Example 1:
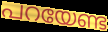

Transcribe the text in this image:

പറയേണ്ട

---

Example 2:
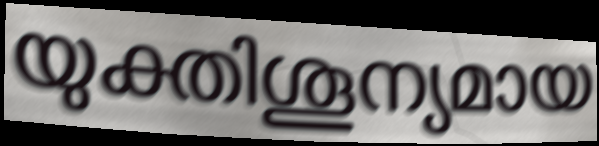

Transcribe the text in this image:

യുക്തിശൂന്യമായ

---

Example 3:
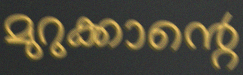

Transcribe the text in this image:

മുറുക്കാന്റെ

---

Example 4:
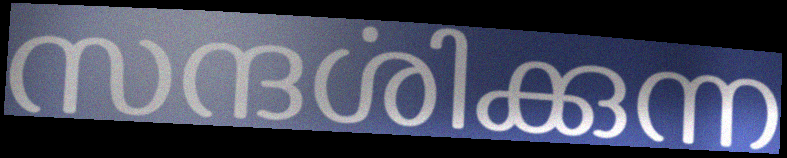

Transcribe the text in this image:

സന്ദൎശിക്കുന്ന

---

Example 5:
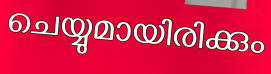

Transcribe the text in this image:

ചെയ്യുമായിരിക്കും